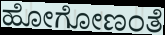
ಹೋಗೋಣಂತೆ